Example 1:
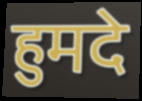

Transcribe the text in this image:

हुमदे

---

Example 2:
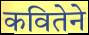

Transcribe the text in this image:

कवितेने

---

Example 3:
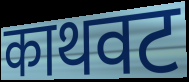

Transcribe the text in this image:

काथवट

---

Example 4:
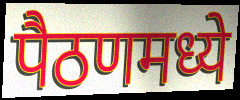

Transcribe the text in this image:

पैठणमध्ये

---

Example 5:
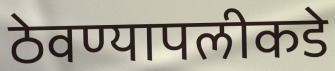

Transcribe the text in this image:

ठेवण्यापलीकडे